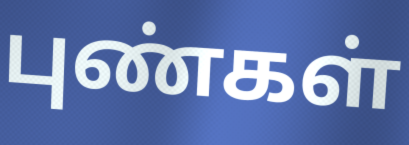
புண்கள்